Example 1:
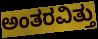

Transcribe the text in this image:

ಅಂತರವಿತ್ತು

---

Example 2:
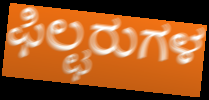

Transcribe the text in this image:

ಫಿಲ್ಟರುಗಳ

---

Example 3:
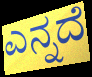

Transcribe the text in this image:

ಎನ್ನದೆ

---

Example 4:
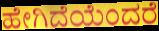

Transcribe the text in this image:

ಹೇಗಿದೆಯೆಂದರೆ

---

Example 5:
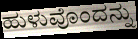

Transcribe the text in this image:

ಹುಳುವೊಂದನ್ನು